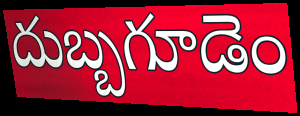
దుబ్బగూడెం